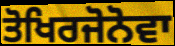
ਤੋਖਿਰਜੋਨੋਵਾ